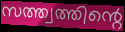
സത്ത്വത്തിന്റെ